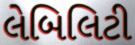
લેબિલિટી